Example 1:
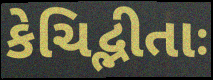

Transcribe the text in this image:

કેચિદ્ભીતાઃ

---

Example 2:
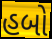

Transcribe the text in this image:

હબો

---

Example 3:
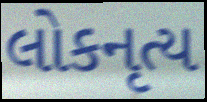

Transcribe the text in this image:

લોકનૃત્ય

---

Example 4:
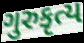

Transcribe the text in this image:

ગુરુકૃત્ય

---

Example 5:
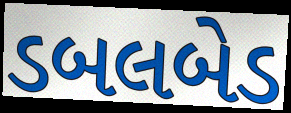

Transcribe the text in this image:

ડબલબેડ